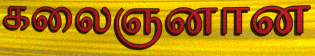
கலைஞனான